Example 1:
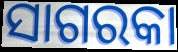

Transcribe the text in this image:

ସାଗରକା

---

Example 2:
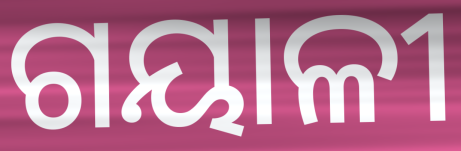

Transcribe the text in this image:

ଗୟାଳୀ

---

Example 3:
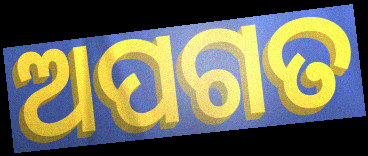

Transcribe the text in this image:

ଅପଗତ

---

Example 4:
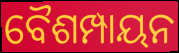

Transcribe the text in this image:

ବୈଶମ୍ପାୟନ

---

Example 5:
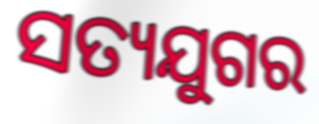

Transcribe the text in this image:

ସତ୍ୟଯୁଗର